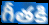
గీతకి